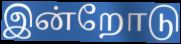
இன்றோடு